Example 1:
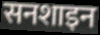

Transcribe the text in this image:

सनशाइन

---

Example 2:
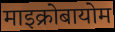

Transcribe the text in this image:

माइक्रोबायोम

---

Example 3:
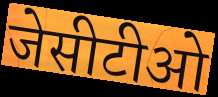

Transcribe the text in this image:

जेसीटीओ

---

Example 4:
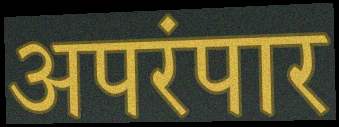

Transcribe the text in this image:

अपरंपार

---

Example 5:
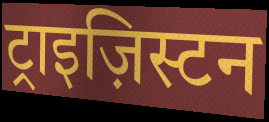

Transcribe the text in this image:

ट्राइज़िस्टन